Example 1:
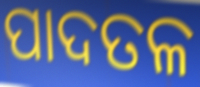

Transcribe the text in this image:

ପାଦତଳ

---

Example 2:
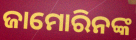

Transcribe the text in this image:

ଜାମୋରିନଙ୍କ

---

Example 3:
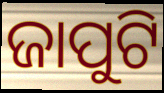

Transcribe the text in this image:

ଜାପୁଟି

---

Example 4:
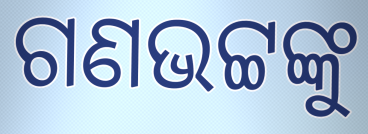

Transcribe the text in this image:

ଗଣଭଟ୍ଟଙ୍କୁ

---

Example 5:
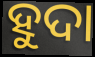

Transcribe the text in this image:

ହୁଦା